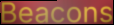
Beacons